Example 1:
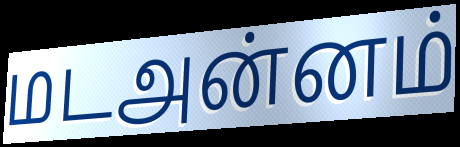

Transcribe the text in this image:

மடஅன்னம்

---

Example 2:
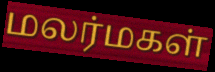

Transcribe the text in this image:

மலர்மகள்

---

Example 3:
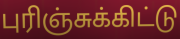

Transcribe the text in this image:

புரிஞ்சுக்கிட்டு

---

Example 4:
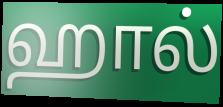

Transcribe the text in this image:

ஹால்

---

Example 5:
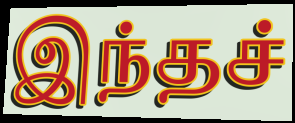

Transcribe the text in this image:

இந்தச்